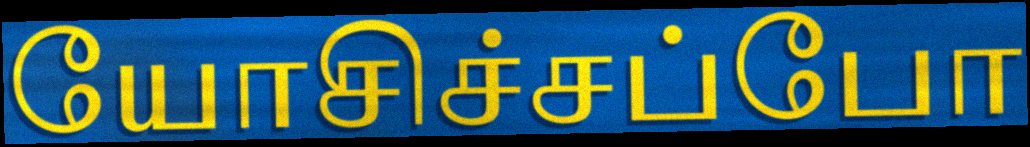
யோசிச்சப்போ